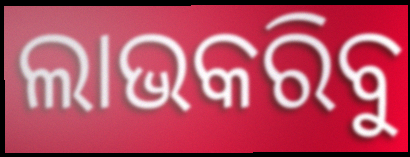
ଲାଭକରିବୁ